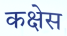
कक्षेस